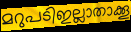
മറുപടിഇല്ലാതാക്കൂ